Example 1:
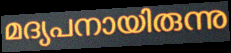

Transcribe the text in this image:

മദ്യപനായിരുന്നു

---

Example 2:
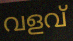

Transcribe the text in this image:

വളവ്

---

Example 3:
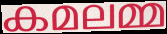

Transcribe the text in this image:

കമലമ്മ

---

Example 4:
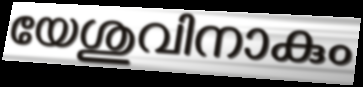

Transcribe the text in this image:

യേശുവിനാകും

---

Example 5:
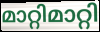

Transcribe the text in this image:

മാറ്റിമാറ്റി